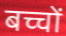
बच्‍चों